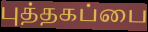
புத்தகப்பை